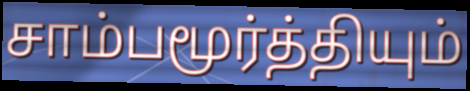
சாம்பமூர்த்தியும்